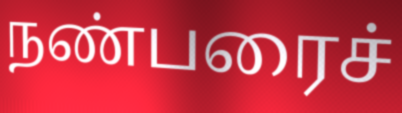
நண்பரைச்